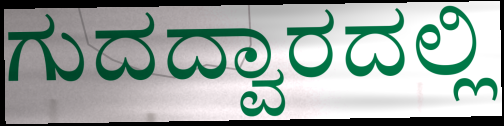
ಗುದದ್ವಾರದಲ್ಲಿ